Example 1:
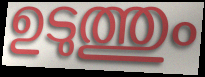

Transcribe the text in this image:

ഉടുത്തും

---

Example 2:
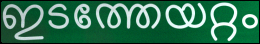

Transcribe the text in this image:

ഇടത്തേയറ്റം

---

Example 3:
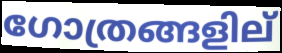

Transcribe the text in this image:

ഗോത്രങ്ങളില്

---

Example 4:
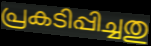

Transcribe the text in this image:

പ്രകടിപ്പിച്ചതു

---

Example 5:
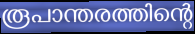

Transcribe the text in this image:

രൂപാന്തരത്തിന്റെ